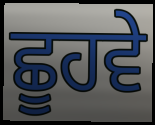
ਛੂਹਵੇ